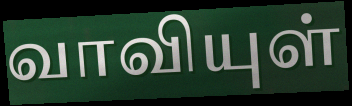
வாவியுள்